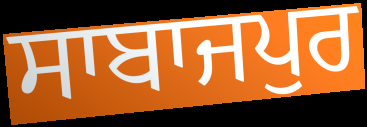
ਸਾਬਾਜਪੁਰ